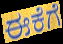
ಈಕೆಗೆ